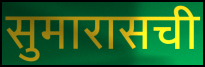
सुमारासची